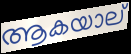
ആകയാല്